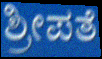
ಶ್ರೀಪತೆ